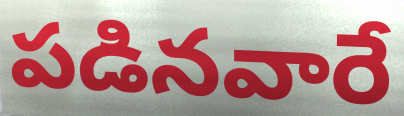
పడినవారే